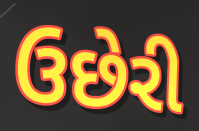
ઉછેરી